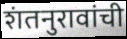
शंतनुरावांची